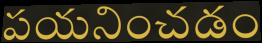
పయనించడం